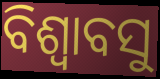
ବିଶ୍ୱାବସୁ